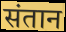
संतान